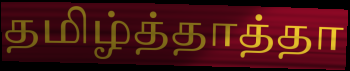
தமிழ்த்தாத்தா